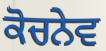
ਕੋਚਨੇਵ